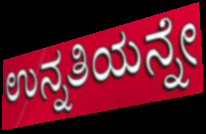
ಉನ್ನತಿಯನ್ನೇ